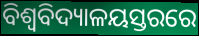
ବିଶ୍ୱବିଦ୍ୟାଳୟସ୍ତରରେ